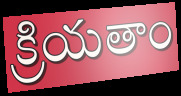
క్రియతాం